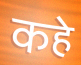
कहे